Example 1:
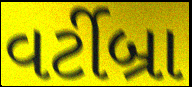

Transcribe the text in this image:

વર્ટીબ્રા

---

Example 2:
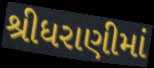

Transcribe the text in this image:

શ્રીધરાણીમાં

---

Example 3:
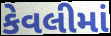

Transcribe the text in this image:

કેવલીમાં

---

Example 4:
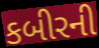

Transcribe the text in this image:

કબીરની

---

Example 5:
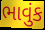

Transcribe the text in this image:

ભાવુંક